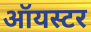
ऑयस्टर